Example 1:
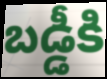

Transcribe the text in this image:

బడ్డీకి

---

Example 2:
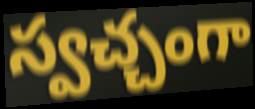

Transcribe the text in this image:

స్వచ్చంగా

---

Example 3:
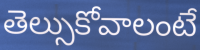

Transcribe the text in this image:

తెల్సుకోవాలంటే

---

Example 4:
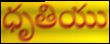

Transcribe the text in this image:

ధృతియు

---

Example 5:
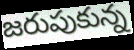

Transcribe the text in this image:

జరుపుకున్న